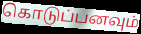
கொடுப்பனவும்